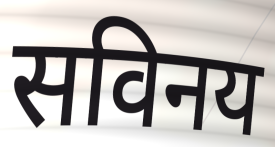
सविनय